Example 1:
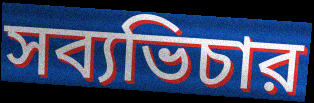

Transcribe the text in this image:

সব্যভিচার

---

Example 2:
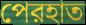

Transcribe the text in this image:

পেরহাত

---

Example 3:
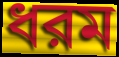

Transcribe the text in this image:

ধরম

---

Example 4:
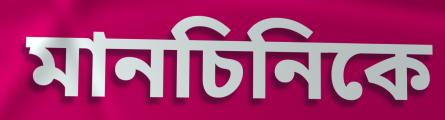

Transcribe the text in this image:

মানচিনিকে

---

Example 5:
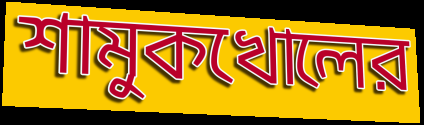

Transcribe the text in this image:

শামুকখোলের